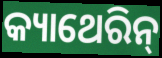
କ୍ୟାଥେରିନ୍